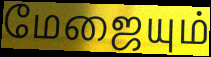
மேஜையும்